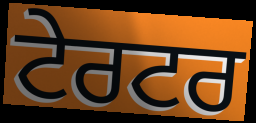
ਟੇਰਟਰ